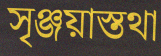
সৃঞ্জয়াস্তথা